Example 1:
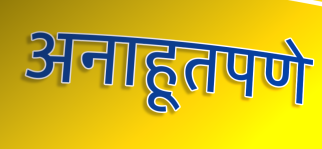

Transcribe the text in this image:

अनाहूतपणे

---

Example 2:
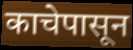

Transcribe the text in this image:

काचेपासून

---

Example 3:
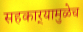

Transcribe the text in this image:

सहकार्यामुळेच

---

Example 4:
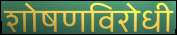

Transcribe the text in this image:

शोषणविरोधी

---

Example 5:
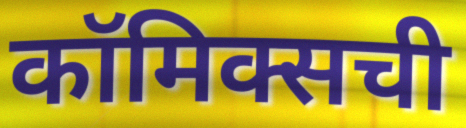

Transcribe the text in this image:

कॉमिक्सची